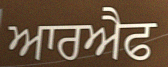
ਆਰਐਫ